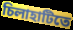
চিলাহাটিতে